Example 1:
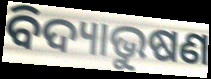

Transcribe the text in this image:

ବିଦ୍ୟାଭୁଷଣ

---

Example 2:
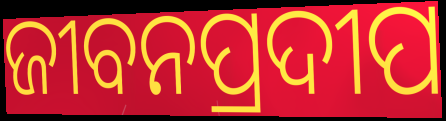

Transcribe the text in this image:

ଜୀବନପ୍ରଦୀପ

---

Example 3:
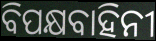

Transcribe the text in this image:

ବିପକ୍ଷବାହିନୀ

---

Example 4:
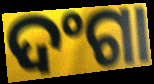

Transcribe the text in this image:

ଦଂଗା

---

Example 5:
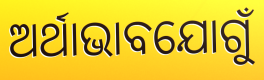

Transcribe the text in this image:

ଅର୍ଥାଭାବଯୋଗୁଁ